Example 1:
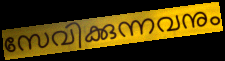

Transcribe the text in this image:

സേവിക്കുന്നവനും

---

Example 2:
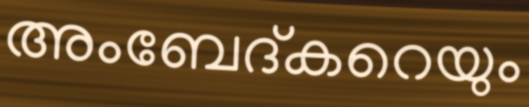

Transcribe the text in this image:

അംബേദ്കറെയും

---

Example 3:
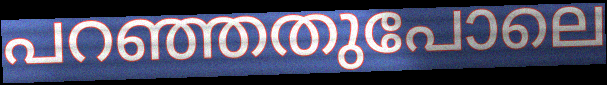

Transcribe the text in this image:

പറഞ്ഞതുപോലെ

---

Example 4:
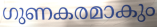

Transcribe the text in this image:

ഗുണകരമാകും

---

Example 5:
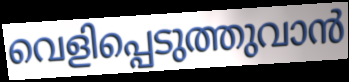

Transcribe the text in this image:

വെളിപ്പെടുത്തുവാൻ